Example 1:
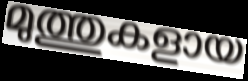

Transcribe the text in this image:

മുത്തുകളായ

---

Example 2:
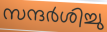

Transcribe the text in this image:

സന്ദർശിച്ചു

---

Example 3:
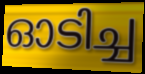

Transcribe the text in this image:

ഓടിച്ച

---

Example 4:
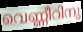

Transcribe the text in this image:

വെണ്ണീറിനു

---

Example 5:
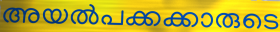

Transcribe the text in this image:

അയൽപക്കക്കാരുടെ